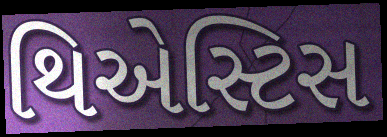
થિએસ્ટિસ